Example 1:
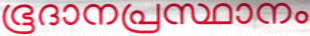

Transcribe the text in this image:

ഭൂദാനപ്രസ്ഥാനം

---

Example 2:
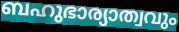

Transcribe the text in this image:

ബഹുഭാര്യാത്വവും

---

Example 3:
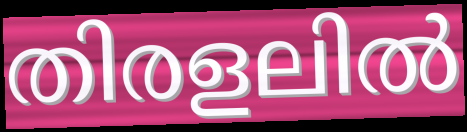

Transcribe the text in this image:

തിരളലിൽ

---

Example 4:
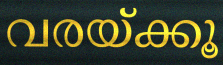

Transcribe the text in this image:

വരയ്ക്കൂ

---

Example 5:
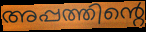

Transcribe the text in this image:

അപ്പത്തിന്റെ